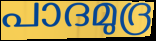
പാദമുദ്ര